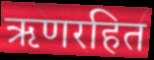
ऋणरहित